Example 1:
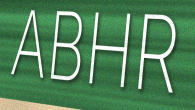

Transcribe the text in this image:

ABHR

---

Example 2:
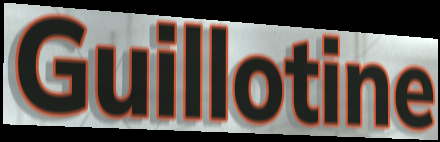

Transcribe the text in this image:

Guillotine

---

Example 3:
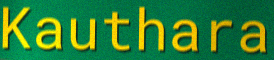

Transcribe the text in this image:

Kauthara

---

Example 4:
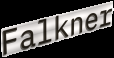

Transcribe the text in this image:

Falkner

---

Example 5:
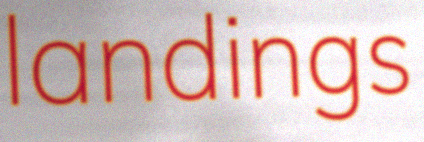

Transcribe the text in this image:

landings